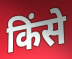
किंसे